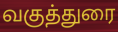
வகுத்துரை